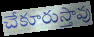
చేకూరుస్తావు